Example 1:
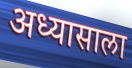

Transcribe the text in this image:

अध्यासाला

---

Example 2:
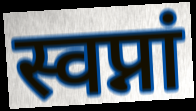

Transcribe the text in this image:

स्वप्नां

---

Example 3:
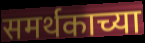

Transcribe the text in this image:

समर्थकाच्या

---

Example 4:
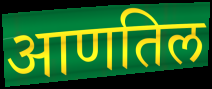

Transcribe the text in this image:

आणतिल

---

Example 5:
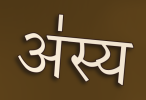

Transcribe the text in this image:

अ॑स्य